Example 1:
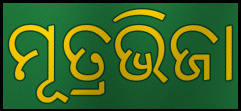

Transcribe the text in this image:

ମୂତ୍ରଭିଜା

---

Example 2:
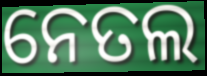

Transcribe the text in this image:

ନେତଲ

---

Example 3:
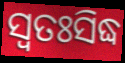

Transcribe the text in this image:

ସ୍ବତଃସିଦ୍ଧ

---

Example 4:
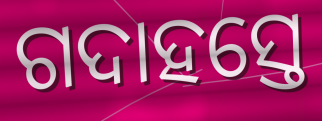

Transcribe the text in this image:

ଗଦାହସ୍ତେ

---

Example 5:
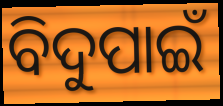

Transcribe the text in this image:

ବିଦୁପାଇଁ